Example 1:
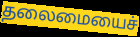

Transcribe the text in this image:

தலைமையைச்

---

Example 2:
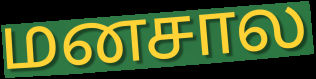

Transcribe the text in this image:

மனசால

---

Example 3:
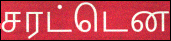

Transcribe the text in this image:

சரட்டென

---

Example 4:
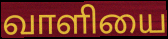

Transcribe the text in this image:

வாளியை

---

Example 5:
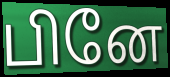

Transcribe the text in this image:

பினே